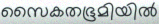
സൈകതഭൂമിയിൽ